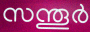
സന്തൂർ